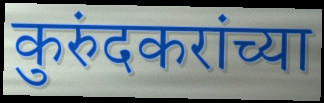
कुरुंदकरांच्या